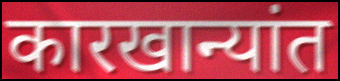
कारखान्यांत